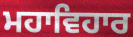
ਮਹਾਵਿਹਾਰ